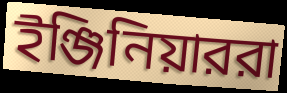
ইঞ্জিনিয়াররা